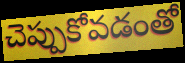
చెప్పుకోవడంతో